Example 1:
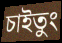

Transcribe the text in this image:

চাইতুং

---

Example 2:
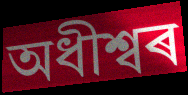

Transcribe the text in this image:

অধীশ্বৰ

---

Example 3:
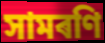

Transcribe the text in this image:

সামৰণি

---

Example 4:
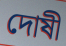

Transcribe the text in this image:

দোষী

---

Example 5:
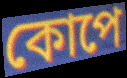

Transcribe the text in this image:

কোপে